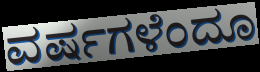
ವರ್ಷಗಳೆಂದೂ